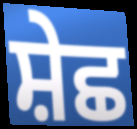
ਸ਼ੇਛ